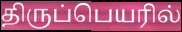
திருப்பெயரில்